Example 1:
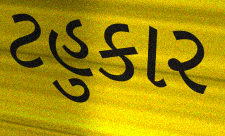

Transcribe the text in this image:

ટહુકાર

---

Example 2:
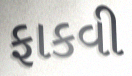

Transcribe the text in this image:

ફાકવી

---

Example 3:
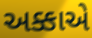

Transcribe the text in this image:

અક્કાએ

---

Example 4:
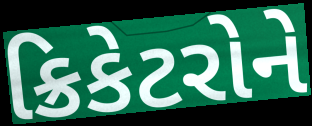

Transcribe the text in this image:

ક્રિકેટરોને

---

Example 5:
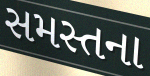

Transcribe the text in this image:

સમસ્તના